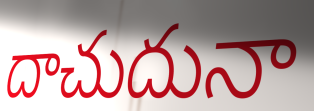
దాచుదునా